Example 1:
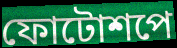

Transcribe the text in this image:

ফোটোশপে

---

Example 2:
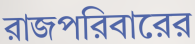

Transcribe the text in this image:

রাজপরিবারের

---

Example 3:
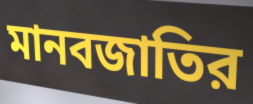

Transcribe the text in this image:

মানবজাতির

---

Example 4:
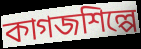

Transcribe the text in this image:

কাগজশিল্পে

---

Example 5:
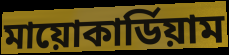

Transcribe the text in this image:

মায়োকার্ডিয়াম